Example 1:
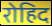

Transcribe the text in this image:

रोहिद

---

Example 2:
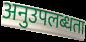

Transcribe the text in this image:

अनुउपलब्धता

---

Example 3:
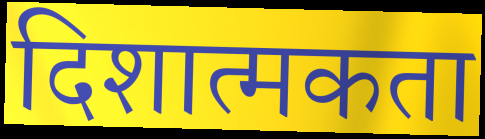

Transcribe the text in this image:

दिशात्मकता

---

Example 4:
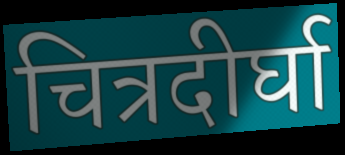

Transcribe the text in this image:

चित्रदीर्घा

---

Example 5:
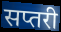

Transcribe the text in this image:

सप्तरी